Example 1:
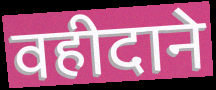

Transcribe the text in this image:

वहीदाने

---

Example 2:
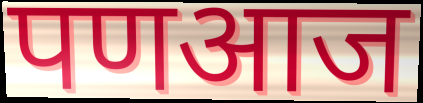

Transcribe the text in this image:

पणआज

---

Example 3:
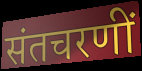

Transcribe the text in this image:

संतचरणीं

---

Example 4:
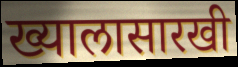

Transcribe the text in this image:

ख्यालासारखी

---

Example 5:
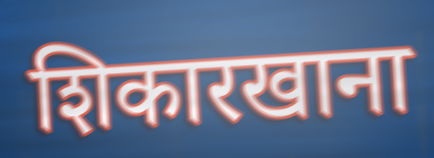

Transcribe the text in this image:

शिकारखाना